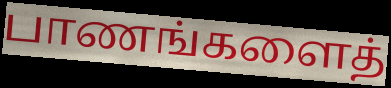
பாணங்களைத்